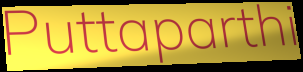
Puttaparthi